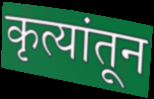
कृत्यांतून